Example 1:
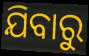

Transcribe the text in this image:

ଯିବାରୁ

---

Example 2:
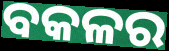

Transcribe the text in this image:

ବକଳର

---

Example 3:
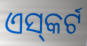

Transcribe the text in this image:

ଏସ୍‌କର୍ଟ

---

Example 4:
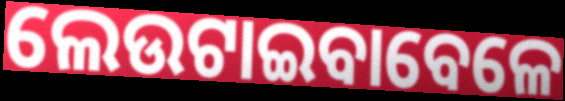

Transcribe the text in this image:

ଲେଉଟାଇବାବେଳେ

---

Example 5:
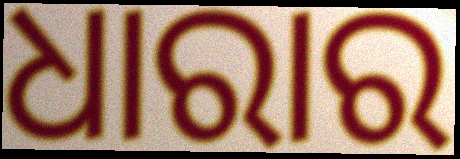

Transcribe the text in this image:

ଧାରାର